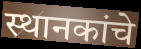
स्थानकांचे